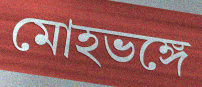
মোহভঙ্গে